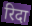
रिदा